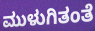
ಮುಳುಗಿತಂತೆ